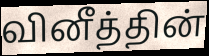
வினீத்தின்